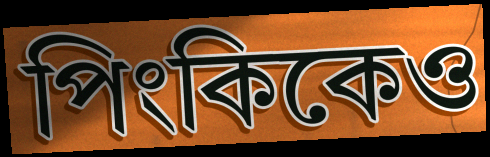
পিংকিকেও